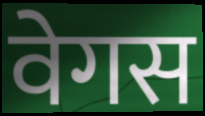
वेगस